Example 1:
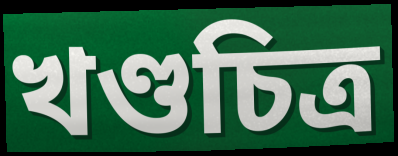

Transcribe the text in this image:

খণ্ডচিত্র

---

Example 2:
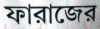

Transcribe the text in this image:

ফারাজের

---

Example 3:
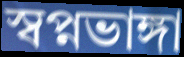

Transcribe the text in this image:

স্বপ্নভাঙ্গা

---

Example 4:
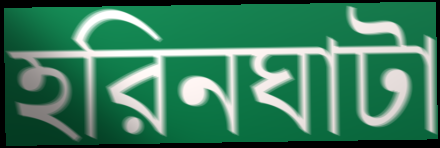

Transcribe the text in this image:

হরিনঘাটা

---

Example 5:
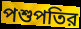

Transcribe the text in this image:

পশুপতির